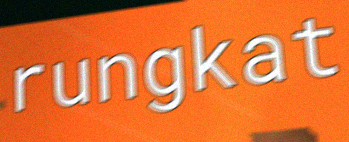
rungkat